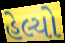
હેલ્યો